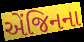
એંજિનના